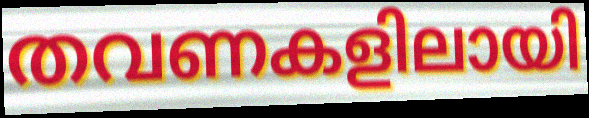
തവണകളിലായി